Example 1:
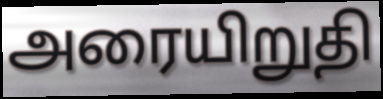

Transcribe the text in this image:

அரையிறுதி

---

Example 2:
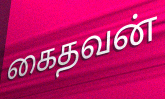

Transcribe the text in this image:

கைதவன்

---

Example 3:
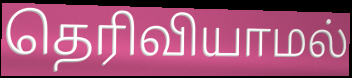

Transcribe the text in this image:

தெரிவியாமல்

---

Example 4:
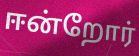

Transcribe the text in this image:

ஈன்றோர்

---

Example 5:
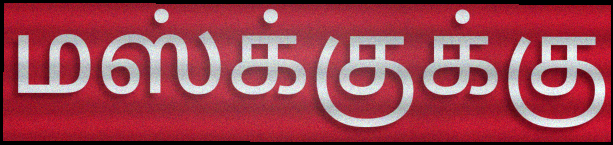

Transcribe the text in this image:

மஸ்க்குக்கு